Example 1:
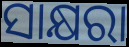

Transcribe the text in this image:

ସାକ୍ଷରା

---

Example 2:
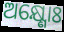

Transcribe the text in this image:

ଅକ୍ଷ୍ଣୋଃ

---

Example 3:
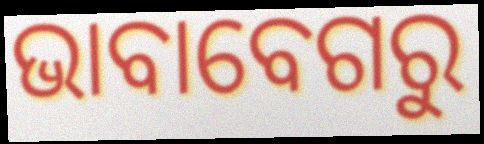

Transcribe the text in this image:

ଭାବାବେଗରୁ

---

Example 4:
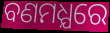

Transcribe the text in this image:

ବଣମଧ୍ଯରେ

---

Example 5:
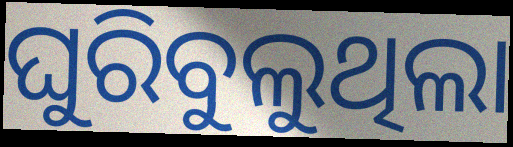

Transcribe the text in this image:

ଘୁରିବୁଲୁଥିଲା